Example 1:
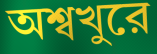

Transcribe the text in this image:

অশ্বখুরে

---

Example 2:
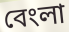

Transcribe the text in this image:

বেংলা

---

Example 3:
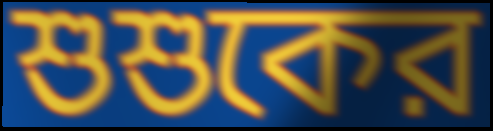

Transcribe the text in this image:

শুশুকের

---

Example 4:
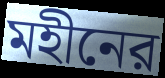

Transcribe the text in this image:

মহীনের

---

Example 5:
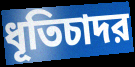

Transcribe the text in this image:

ধূতিচাদর